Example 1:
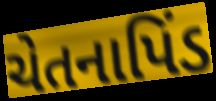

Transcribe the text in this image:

ચેતનાપિંડ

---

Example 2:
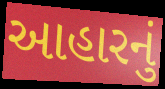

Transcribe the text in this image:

આહારનું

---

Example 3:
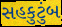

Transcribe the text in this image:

સહકુટુંબ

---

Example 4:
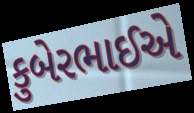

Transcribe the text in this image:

કુબેરભાઈએ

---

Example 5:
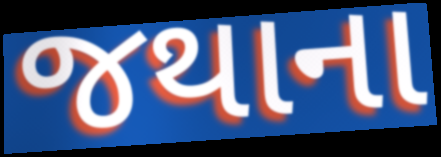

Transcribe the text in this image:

જથાના